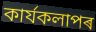
কাৰ্যকলাপৰ